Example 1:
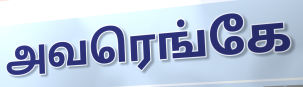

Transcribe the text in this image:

அவரெங்கே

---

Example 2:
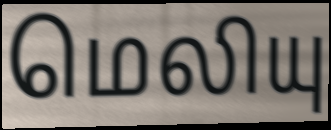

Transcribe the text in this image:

மெலியு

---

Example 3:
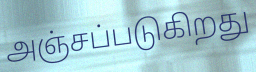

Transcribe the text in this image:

அஞ்சப்படுகிறது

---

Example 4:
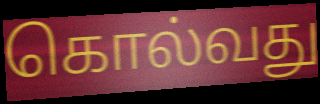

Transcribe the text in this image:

கொல்வது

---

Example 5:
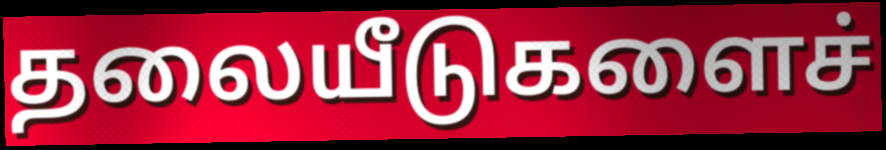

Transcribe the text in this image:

தலையீடுகளைச்